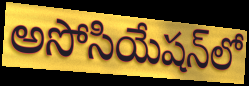
అసోసియేషన్‌లో